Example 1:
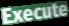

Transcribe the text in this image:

Execute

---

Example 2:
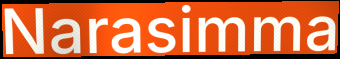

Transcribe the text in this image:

Narasimma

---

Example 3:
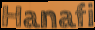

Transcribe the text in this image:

Hanafi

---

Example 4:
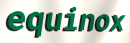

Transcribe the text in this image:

equinox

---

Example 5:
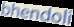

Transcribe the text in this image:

bhendoli